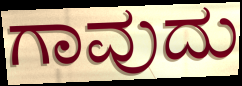
ಗಾವುದು